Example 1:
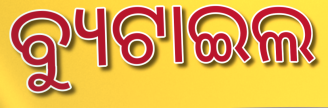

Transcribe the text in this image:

ବ୍ୟୁଟାଇଲ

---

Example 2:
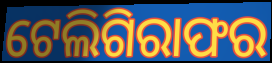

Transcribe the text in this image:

ଟେଲିଗିରାଫର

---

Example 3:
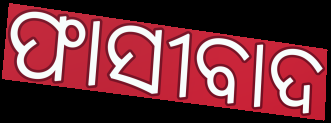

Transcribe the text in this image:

ଫାସୀବାଦ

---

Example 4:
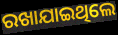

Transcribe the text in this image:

ରଖାଯାଇଥିଲେ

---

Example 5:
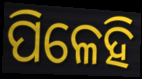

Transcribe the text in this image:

ପିଳେହି